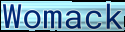
Womack